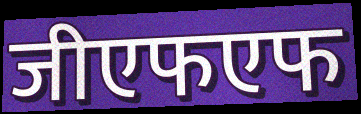
जीएफएफ